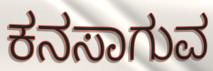
ಕನಸಾಗುವ